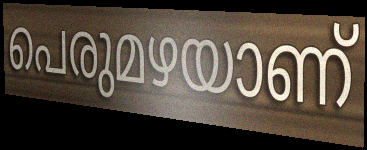
പെരുമഴയാണ്